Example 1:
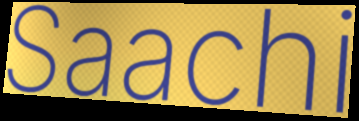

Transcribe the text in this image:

Saachi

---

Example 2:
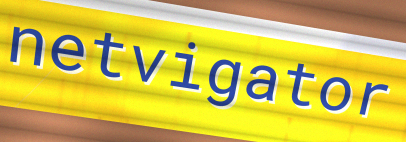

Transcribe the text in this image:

netvigator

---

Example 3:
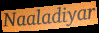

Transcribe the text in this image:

Naaladiyar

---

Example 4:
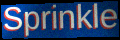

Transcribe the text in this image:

Sprinkle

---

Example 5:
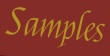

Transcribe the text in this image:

Samples